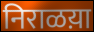
निराळय़ा